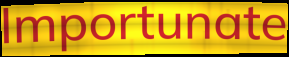
Importunate